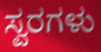
ಸ್ವರಗಳು